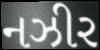
નઝીર